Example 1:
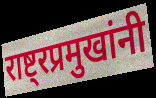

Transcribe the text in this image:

राष्ट्रप्रमुखांनी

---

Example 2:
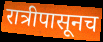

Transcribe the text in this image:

रात्रीपासूनच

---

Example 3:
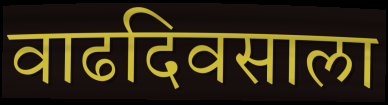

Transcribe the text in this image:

वाढदिवसाला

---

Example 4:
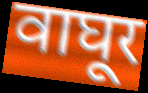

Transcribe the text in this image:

वाघूर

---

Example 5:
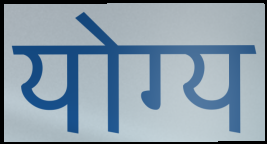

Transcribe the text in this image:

योग्य